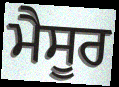
ਮੈਸੂਰ